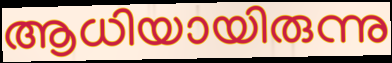
ആധിയായിരുന്നു